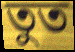
তুত